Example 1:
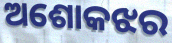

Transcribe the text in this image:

ଅଶୋକଝର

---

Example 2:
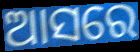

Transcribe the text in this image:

ଆସରେ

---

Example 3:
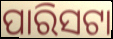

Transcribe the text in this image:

ପାରିସଟା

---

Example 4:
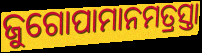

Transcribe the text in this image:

ଜୁଗୋପାମାନମତ୍ରସ୍ତା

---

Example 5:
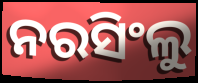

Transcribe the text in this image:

ନରସିଂଲୁ